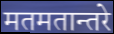
मतमतान्तरे